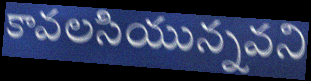
కావలసియున్నవని